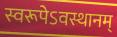
स्वरूपेऽवस्थानम्